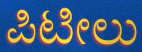
ಪಿಟೀಲು